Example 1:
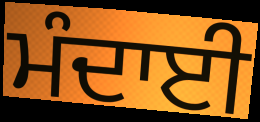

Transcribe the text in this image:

ਮੰਦਾਈ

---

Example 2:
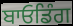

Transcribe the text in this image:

ਬਾਓਡਿੰਗ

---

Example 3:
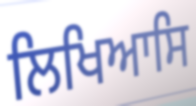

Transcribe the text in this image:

ਲਿਖਿਆਸਿ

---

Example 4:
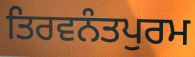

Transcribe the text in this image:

ਤਿਰਵਨੰਤਪੁਰਮ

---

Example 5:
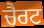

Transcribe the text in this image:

ਚੈਰਟ